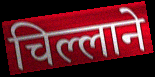
चिल्लाने